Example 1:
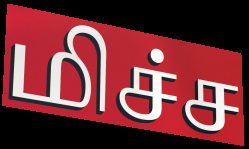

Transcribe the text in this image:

மிச்ச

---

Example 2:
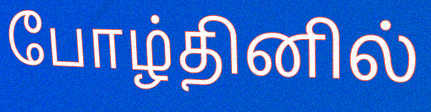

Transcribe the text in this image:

போழ்தினில்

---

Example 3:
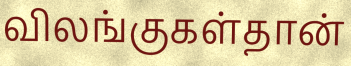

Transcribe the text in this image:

விலங்குகள்தான்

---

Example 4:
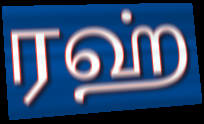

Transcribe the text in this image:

ரஹ்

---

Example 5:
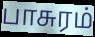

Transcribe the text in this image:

பாசுரம்